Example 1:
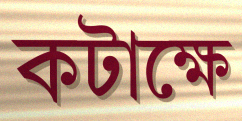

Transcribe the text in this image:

কটাক্ষে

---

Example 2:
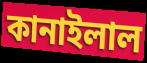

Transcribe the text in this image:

কানাইলাল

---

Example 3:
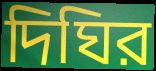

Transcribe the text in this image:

দিঘির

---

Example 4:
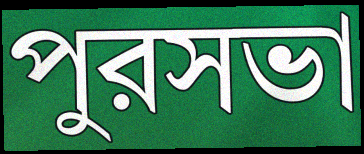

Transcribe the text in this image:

পুরসভা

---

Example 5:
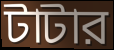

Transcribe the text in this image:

টাটার